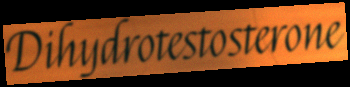
Dihydrotestosterone